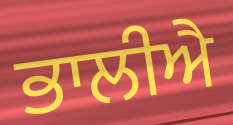
ਭਾਲੀਐ